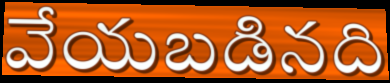
వేయబడినది